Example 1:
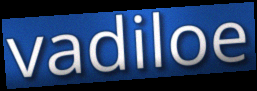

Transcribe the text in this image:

vadiloe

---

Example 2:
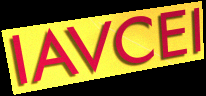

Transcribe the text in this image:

IAVCEI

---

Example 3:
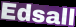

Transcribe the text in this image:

Edsall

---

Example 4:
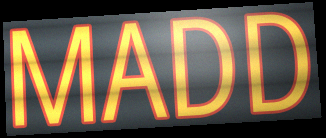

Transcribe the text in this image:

MADD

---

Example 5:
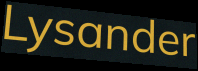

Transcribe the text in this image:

Lysander